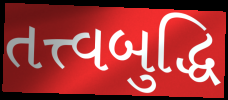
તત્ત્વબુદ્ધિ